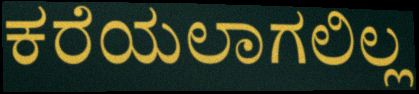
ಕರೆಯಲಾಗಲಿಲ್ಲ